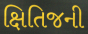
ક્ષિતિજની